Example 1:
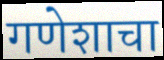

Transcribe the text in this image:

गणेशाचा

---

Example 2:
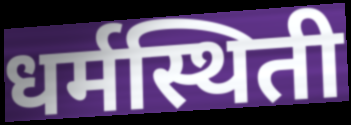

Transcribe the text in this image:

धर्मस्थिती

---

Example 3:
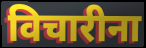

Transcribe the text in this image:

विचारीना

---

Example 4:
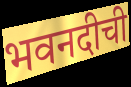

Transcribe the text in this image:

भवनदीची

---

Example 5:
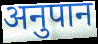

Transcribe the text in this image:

अनुपान